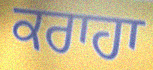
ਕਰਾਹਾ